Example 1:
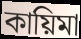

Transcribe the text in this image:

কায়িমা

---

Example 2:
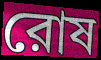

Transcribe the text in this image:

রোষ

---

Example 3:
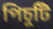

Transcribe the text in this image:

পিচুটি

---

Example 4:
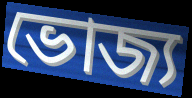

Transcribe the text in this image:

ভোজ্য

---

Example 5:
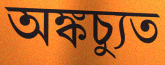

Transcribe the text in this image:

অঙ্কচ্যুত